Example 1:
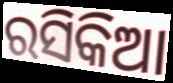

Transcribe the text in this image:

ରସିକିଆ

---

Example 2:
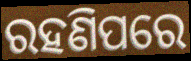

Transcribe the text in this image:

ରହଣିପରେ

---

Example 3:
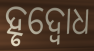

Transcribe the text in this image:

ହୃଦ୍ବୋଧ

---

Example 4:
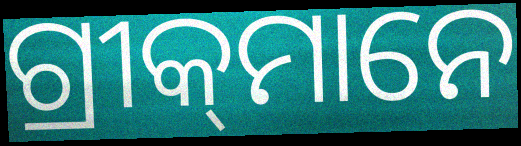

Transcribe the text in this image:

ଗ୍ରୀକ୍‌ମାନେ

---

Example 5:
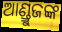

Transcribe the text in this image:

ଆଣ୍ଡ୍ରୁଜଙ୍କ